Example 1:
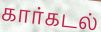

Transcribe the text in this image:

கார்கடல்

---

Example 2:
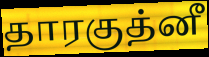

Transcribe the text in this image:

தாரகுத்னீ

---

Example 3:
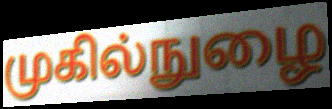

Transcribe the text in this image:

முகில்நுழை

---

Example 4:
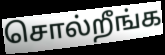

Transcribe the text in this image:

சொல்றீங்க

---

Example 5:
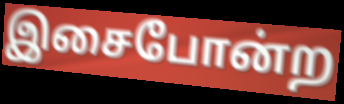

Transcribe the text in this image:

இசைபோன்ற